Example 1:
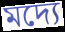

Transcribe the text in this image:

মদ্যে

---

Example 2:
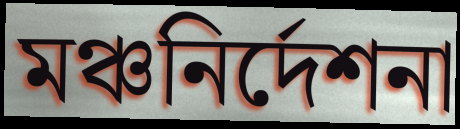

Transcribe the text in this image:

মঞ্চনির্দেশনা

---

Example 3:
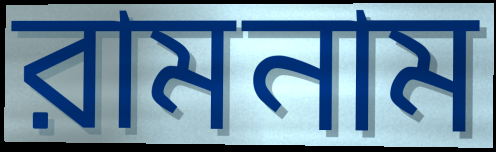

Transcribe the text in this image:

রামনাম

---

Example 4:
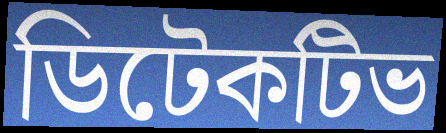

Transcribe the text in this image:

ডিটেকটিভ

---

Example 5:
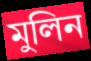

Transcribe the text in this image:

মুলিন